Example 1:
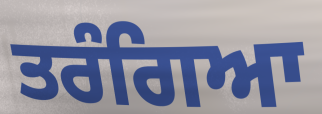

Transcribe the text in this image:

ਤਰੰਗਿਆ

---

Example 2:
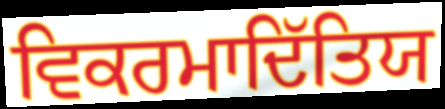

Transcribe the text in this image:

ਵਿਕਰਮਾਦਿੱਤਿਯ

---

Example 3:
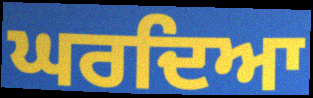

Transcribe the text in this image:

ਘਰਦਿਆ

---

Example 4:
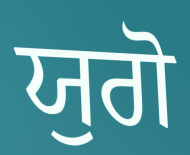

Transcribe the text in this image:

ਯੁਗੋ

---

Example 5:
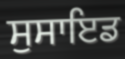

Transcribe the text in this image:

ਸੁਸਾਇਡ